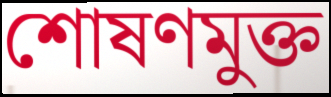
শোষণমুক্ত